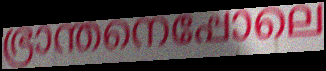
ഭ്രാന്തനെപ്പോലെ